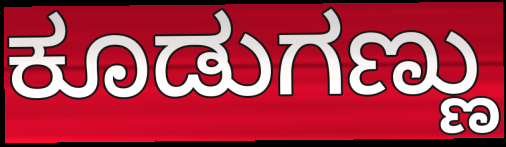
ಕೂಡುಗಣ್ಣು